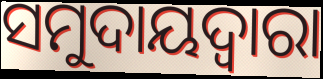
ସମୁଦାୟଦ୍ୱାରା